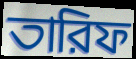
তারিফ